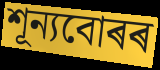
শূন্যবোৰৰ